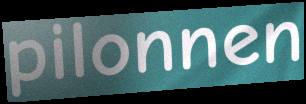
pilonnen